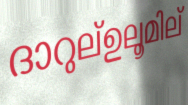
ദാറുല്ഉലൂമില്